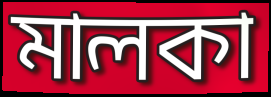
মালকা